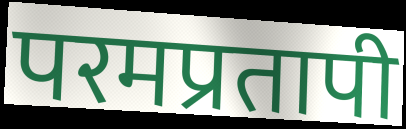
परमप्रतापी